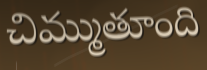
చిమ్ముతూంది